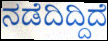
ನಡೆದಿದ್ದಿದೆ